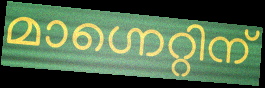
മാഗ്നെറ്റിന്